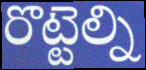
రొట్టెల్ని